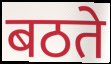
बठते